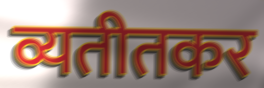
व्यतीतकर